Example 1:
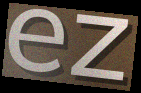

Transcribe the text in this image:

ez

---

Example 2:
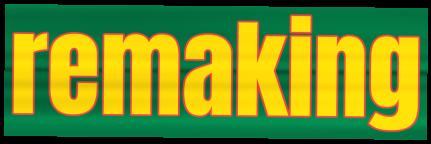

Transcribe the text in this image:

remaking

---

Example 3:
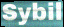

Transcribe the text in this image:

Sybil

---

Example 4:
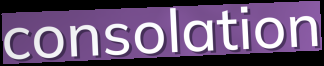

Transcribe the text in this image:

consolation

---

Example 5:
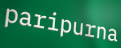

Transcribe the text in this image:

paripurna